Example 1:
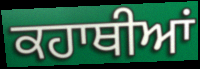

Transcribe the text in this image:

ਕਹਾਥੀਆਂ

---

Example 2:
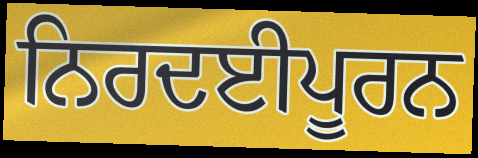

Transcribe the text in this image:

ਨਿਰਦਈਪੂਰਨ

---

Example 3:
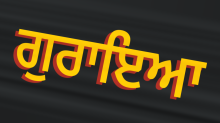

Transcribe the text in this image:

ਗੁਰਾਇਆ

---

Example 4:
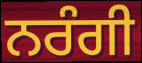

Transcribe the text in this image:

ਨਰੰਗੀ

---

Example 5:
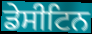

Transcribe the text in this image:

ਡੇਸੀਟਿਨ